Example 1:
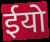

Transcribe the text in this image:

ईयो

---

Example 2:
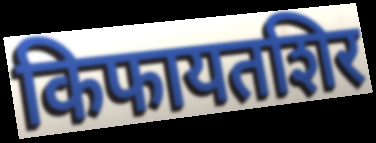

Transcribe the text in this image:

किफायतशिर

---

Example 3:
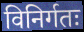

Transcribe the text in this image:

विनिर्गतः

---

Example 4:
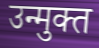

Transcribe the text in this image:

उन्मुक्त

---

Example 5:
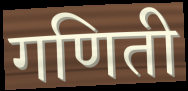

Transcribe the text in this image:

गणिती